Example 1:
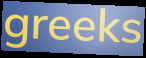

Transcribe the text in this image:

greeks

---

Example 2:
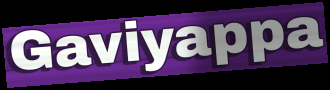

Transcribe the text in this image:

Gaviyappa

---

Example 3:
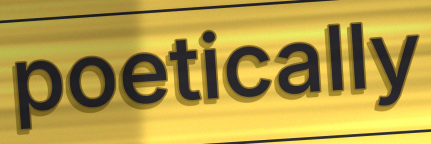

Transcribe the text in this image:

poetically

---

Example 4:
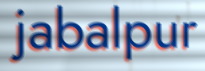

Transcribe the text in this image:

jabalpur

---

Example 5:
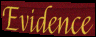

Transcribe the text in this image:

Evidence